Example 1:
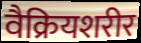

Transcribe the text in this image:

वैक्रियशरीर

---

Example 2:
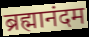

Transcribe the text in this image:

ब्रह्मानंदम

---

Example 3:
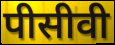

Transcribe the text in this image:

पीसीवी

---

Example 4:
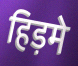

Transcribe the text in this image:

हिड़मे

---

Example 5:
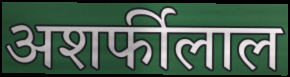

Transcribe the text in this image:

अशर्फीलाल